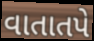
વાતાતપે